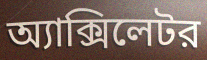
অ্যাক্সিলেটর